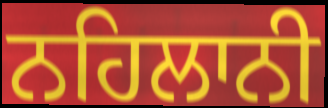
ਨਹਿਲਾਨੀ